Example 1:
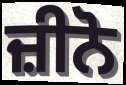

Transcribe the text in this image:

ਜ਼ੀਨੋ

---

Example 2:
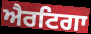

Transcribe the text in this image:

ਐਰਟਿਗਾ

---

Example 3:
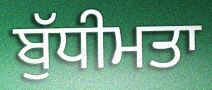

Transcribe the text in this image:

ਬੁੱਧੀਮਤਾ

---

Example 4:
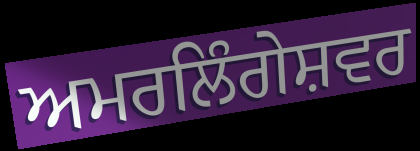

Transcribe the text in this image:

ਅਮਰਲਿੰਗੇਸ਼ਵਰ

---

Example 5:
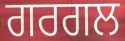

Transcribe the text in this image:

ਗਰਗਲ